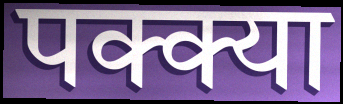
पक्क्या